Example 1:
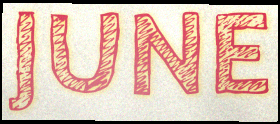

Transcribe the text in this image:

JUNE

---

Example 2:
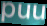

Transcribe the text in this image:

puu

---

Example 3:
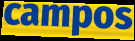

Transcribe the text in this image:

campos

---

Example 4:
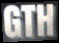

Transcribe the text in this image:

GTH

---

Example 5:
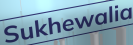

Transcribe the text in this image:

Sukhewalia